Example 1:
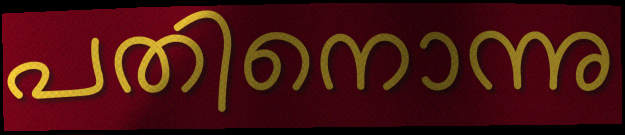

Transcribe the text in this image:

പതിനൊന്നു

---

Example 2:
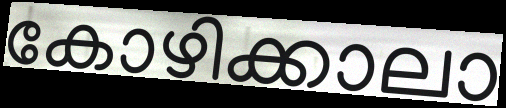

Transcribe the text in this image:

കോഴിക്കാലാ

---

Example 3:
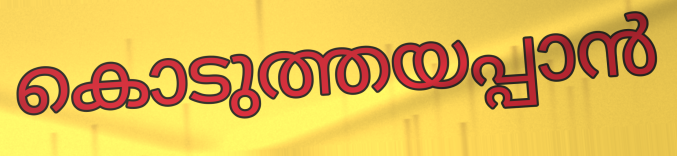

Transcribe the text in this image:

കൊടുത്തയപ്പാൻ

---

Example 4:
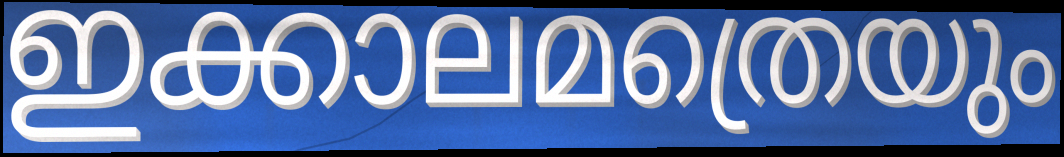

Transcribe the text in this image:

ഇക്കാലമത്രെയും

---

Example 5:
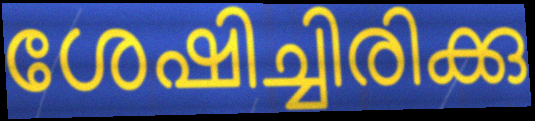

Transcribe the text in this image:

ശേഷിച്ചിരിക്കു